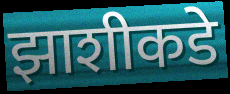
झाशीकडे